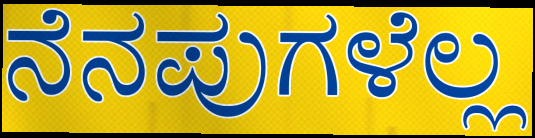
ನೆನಪುಗಳೆಲ್ಲ